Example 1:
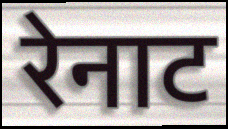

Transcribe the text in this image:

रेनाट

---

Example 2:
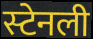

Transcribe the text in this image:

स्‍टेनली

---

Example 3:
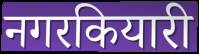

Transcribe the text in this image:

नगरकियारी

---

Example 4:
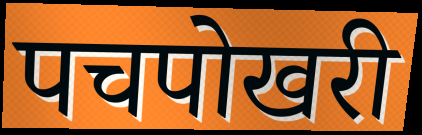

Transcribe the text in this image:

पचपोखरी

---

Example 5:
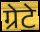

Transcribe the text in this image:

ग्रेटे